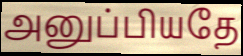
அனுப்பியதே